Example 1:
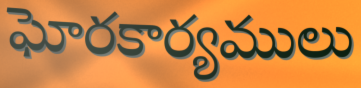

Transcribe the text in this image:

ఘోరకార్యములు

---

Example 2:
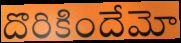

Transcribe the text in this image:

దొరికిందేమో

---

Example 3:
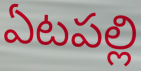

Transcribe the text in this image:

ఏటపల్లి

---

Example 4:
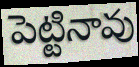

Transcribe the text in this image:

పెట్టినావు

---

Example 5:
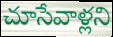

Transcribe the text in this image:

చూసేవాళ్లని